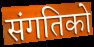
संगतिको